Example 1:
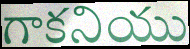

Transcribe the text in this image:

గాకనియు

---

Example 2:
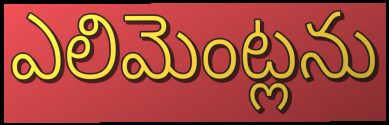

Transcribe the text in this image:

ఎలిమెంట్లను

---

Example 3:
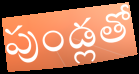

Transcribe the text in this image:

పుండ్లతో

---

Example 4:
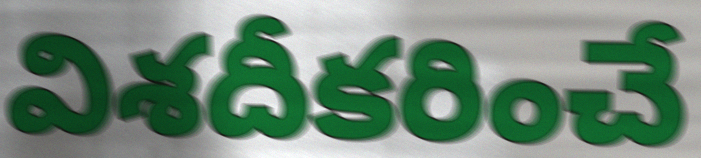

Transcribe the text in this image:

విశదీకరించే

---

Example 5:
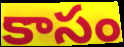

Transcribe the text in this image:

కాసం